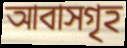
আবাসগৃহ